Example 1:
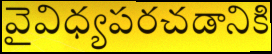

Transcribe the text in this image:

వైవిధ్యపరచడానికి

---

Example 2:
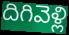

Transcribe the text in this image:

దిగివెళ్లి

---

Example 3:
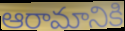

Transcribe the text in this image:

ఆరామానికి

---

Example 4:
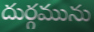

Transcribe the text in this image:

దుర్గమును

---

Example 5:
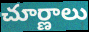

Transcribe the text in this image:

చూర్ణాలు